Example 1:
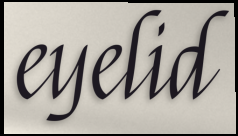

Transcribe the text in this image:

eyelid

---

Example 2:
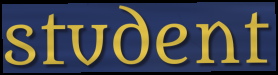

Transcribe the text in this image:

student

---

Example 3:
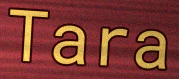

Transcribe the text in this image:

Tara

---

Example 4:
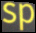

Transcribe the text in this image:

sp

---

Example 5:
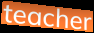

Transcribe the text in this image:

teacher